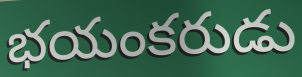
భయంకరుడు